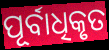
ପୂର୍ବାଧିକୃତ